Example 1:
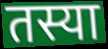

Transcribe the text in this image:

तस्या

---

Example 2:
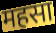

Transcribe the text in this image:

महसा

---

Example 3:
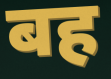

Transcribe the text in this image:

बह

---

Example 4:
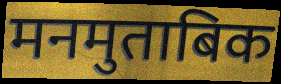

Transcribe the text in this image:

मनमुताबिक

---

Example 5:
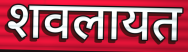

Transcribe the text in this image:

शवलायत